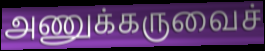
அணுக்கருவைச்